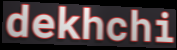
dekhchi